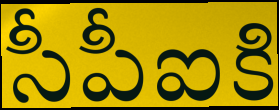
సీపీఐకి